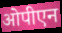
ओपीएन